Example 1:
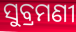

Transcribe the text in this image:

ସୁବ୍ରମଣୀ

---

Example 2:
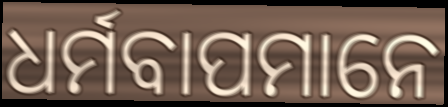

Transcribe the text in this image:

ଧର୍ମବାପମାନେ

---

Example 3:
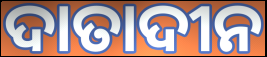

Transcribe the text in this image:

ଦାତାଦୀନ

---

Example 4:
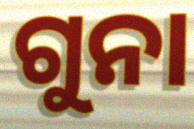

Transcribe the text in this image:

ଗୁନା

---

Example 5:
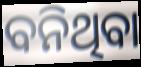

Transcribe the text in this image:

ବନିଥିବା